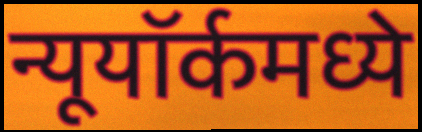
न्यूयॉर्कमध्ये